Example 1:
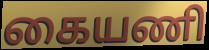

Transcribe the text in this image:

கையணி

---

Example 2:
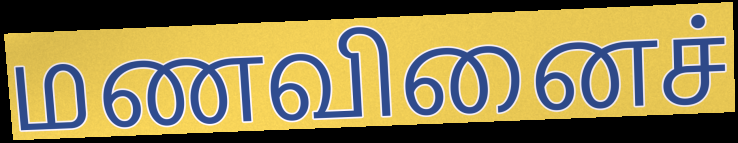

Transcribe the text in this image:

மணவினைச்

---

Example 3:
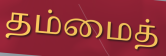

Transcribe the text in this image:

தம்மைத்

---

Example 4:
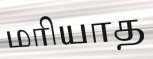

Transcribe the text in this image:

மரியாத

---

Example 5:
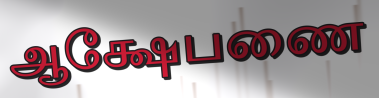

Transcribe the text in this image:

ஆக்ஷேபணை